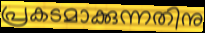
പ്രകടമാക്കുന്നതിനു